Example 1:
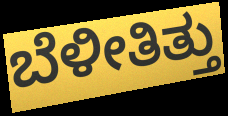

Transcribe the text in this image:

ಬೆಳೀತಿತ್ತು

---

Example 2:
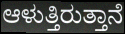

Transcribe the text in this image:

ಆಳುತ್ತಿರುತ್ತಾನೆ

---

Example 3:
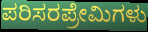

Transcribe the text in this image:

ಪರಿಸರಪ್ರೇಮಿಗಳು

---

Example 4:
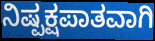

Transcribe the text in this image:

ನಿಷ್ಪಕ್ಷಪಾತವಾಗಿ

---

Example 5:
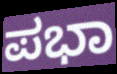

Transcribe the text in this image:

ಪಭಾ